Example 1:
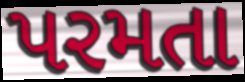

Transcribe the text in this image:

પરમતા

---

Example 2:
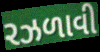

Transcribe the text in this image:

રઝળાવી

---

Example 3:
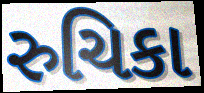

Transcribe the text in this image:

રુચિકા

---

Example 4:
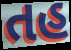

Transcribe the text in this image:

તહ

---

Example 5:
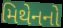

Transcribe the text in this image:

મિથેનનો